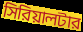
সিরিয়ালটার